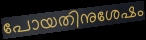
പോയതിനുശേഷം